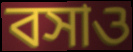
বসাও